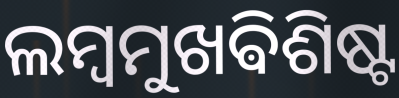
ଲମ୍ବମୁଖଵିଶିଷ୍ଟ